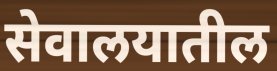
सेवालयातील